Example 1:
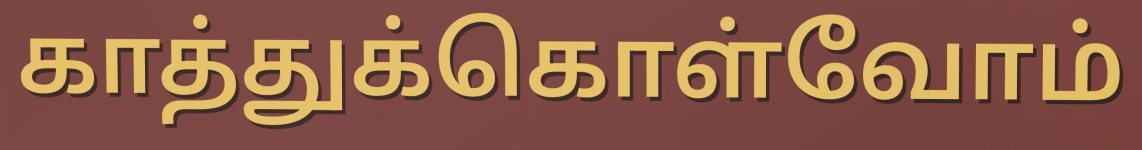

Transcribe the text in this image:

காத்துக்கொள்வோம்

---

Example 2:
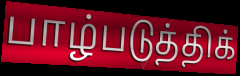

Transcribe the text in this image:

பாழ்படுத்திக்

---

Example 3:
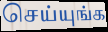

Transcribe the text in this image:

செய்யுங்க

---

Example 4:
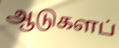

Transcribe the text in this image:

ஆடுகளப்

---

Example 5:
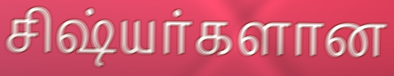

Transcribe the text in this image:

சிஷ்யர்களான